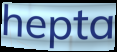
hepta